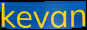
kevan